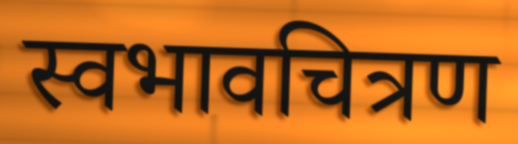
स्वभावचित्रण